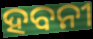
ହବନୀ